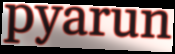
pyarun